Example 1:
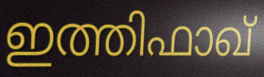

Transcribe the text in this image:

ഇത്തിഫാഖ്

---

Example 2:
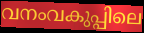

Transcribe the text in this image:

വനംവകുപ്പിലെ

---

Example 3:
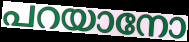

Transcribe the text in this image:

പറയാനോ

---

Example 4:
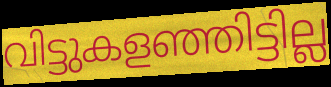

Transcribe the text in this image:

വിട്ടുകളഞ്ഞിട്ടില്ല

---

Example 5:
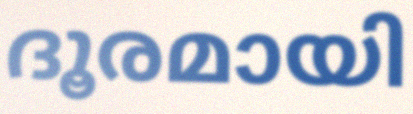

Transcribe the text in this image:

ദൂരമായി